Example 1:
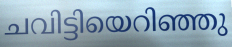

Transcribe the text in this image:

ചവിട്ടിയെറിഞ്ഞു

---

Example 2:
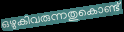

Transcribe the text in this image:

ഒഴുകിവരുന്നതുകൊണ്ട്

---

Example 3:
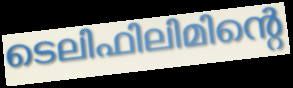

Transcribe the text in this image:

ടെലിഫിലിമിന്റെ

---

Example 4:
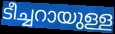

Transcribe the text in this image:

ടീച്ചറായുള്ള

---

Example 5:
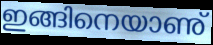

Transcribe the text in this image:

ഇങ്ങിനെയാണു്